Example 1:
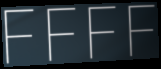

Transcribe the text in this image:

FFFF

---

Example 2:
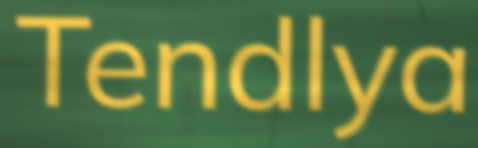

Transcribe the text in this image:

Tendlya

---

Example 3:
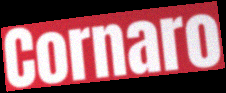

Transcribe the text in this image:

Cornaro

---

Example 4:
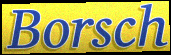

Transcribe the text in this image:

Borsch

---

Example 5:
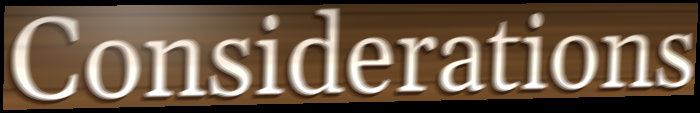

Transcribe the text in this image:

Considerations